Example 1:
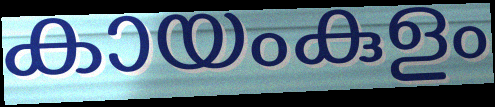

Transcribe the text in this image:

കായംകുളം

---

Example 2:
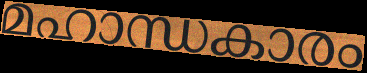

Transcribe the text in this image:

മഹാന്ധകാരം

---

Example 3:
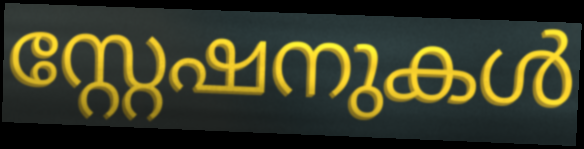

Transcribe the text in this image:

സ്റ്റേഷനുകൾ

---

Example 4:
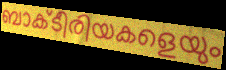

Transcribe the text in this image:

ബാക്ടീരിയകളെയും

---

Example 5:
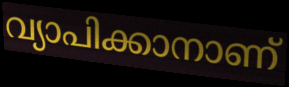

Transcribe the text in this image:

വ്യാപിക്കാനാണ്